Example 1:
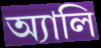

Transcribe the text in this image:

অ্যালি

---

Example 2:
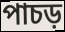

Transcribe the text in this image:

পাচড়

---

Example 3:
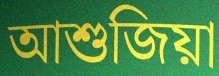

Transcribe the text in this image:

আশুজিয়া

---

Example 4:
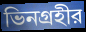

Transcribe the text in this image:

ভিনগ্রহীর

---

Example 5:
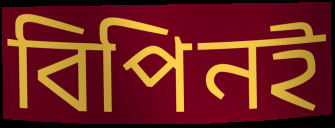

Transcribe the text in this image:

বিপিনই